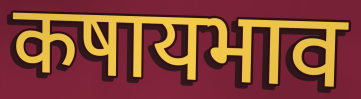
कषायभाव